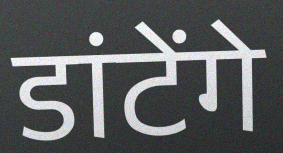
डांटेंगे